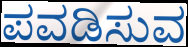
ಪವಡಿಸುವ